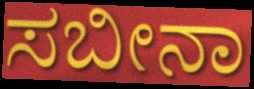
ಸಬೀನಾ